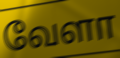
வேளா